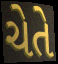
ચેતે